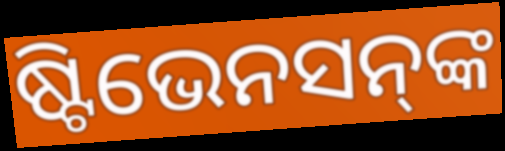
ଷ୍ଟିଭେନସନ୍‍ଙ୍କ